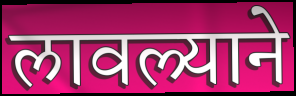
लावल्याने